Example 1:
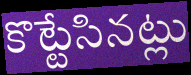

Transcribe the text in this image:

కొట్టేసినట్లు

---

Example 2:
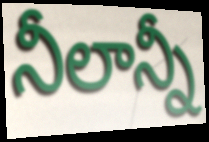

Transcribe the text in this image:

నీలాన్నీ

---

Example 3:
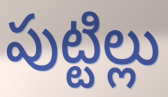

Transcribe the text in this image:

పుట్టిల్లు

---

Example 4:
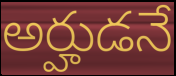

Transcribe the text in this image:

అర్హుడనే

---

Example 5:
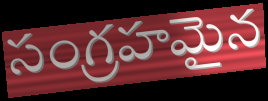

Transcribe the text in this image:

సంగ్రహమైన